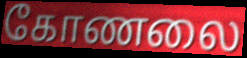
கோணலை